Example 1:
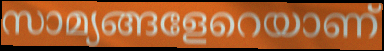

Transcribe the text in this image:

സാമ്യങ്ങളേറെയാണ്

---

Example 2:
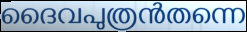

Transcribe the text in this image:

ദൈവപുത്രൻതന്നെ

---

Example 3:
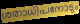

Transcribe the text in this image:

ശതാധിപനോടും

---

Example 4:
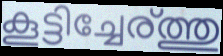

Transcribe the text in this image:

കൂട്ടിച്ചേര്ത്തു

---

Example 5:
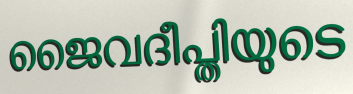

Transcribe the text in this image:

ജൈവദീപ്തിയുടെ